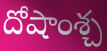
దోషాంశ్చ